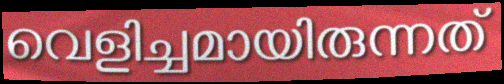
വെളിച്ചമായിരുന്നത്